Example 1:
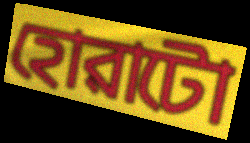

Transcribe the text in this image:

হোৱাটো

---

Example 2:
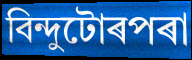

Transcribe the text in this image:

বিন্দুটোৰপৰা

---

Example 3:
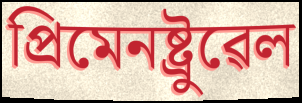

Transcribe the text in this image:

প্ৰিমেনষ্ট্ৰুৱেল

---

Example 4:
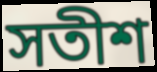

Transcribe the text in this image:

সতীশ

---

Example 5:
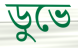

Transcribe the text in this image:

ডুভে